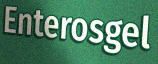
Enterosgel